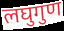
लघुगुण